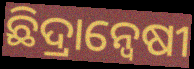
ଛିଦ୍ରାନ୍ୱେଷୀ